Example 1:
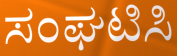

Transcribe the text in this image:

ಸಂಘಟಿಸಿ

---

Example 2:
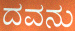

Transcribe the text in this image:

ದವನು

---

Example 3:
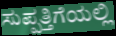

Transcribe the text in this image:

ಸುಪ್ಪತ್ತಿಗೆಯಲ್ಲಿ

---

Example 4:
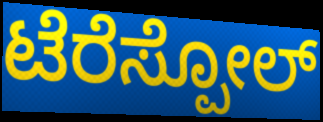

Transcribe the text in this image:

ಟೆರೆಸ್ಪೋಲ್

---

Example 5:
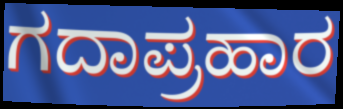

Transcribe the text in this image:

ಗದಾಪ್ರಹಾರ